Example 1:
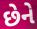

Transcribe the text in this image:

છેને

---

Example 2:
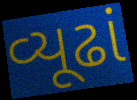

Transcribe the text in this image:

વ્યૂઢાં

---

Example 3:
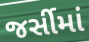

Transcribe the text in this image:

જર્સીમાં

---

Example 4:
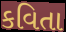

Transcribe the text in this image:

કવિતા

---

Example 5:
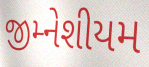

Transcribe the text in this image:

જીમ્નેશીયમ